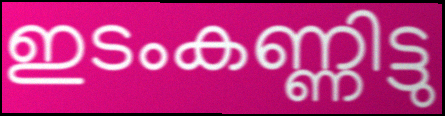
ഇടംകണ്ണിട്ടു